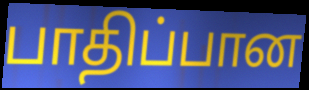
பாதிப்பான